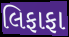
લિફાફા